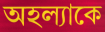
অহল্যাকে